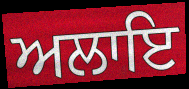
ਅਲਾਇ